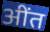
अींत